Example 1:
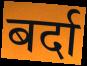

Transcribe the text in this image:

बर्दा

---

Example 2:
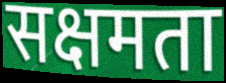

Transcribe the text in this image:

सक्षमता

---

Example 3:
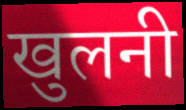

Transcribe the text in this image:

खुलनी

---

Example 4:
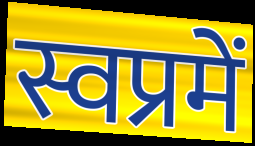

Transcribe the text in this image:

स्वप्रमें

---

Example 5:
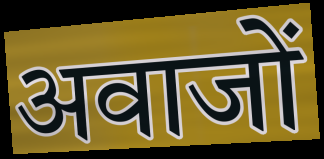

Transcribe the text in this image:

अवाजों